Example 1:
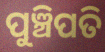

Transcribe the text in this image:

ପୁଞ୍ଚିପତି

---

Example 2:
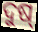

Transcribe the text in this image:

ଦୁଷ୍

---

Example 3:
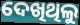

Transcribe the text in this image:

ଦେଖିଥିଲୁ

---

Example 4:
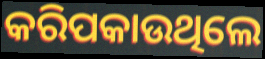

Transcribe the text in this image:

କରିପକାଉଥିଲେ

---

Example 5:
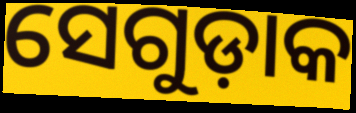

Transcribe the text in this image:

ସେଗୁଡ଼ାକ